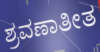
ಶ್ರವಣಾತೀತ